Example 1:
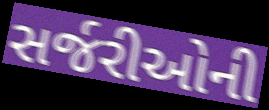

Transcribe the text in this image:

સર્જરીઓની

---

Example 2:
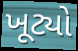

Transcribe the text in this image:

ખૂટ્યો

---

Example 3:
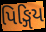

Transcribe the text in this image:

પિઙ્ગિય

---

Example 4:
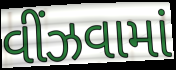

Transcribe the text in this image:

વીંઝવામાં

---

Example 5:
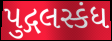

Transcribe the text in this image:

પુદ્ગલસ્કંધ